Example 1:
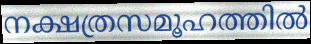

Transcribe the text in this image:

നക്ഷത്രസമൂഹത്തിൽ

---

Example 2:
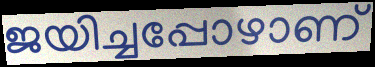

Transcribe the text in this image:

ജയിച്ചപ്പോഴാണ്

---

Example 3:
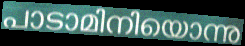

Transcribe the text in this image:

പാടാമിനിയൊന്നു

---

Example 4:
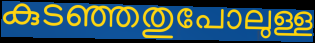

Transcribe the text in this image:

കുടഞ്ഞതുപോലുള്ള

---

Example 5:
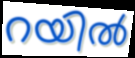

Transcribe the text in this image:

റയിൽ